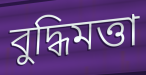
বুদ্ধিমত্তা